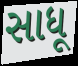
સાધૂ